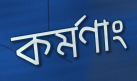
কর্মণাং